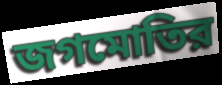
জগমোতির